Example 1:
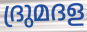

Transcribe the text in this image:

ദ്രുമദള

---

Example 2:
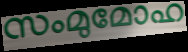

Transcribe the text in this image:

സംമുമോഹ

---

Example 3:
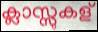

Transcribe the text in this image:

ക്ലാസ്സുകള്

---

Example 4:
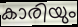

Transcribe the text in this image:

കാരിയും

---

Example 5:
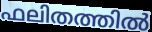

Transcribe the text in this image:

ഫലിതത്തിൽ